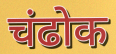
चंढोक